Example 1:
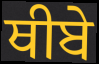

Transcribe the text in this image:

ਥੀਬੇ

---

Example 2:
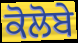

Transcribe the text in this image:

ਕੋਲੋਬੇ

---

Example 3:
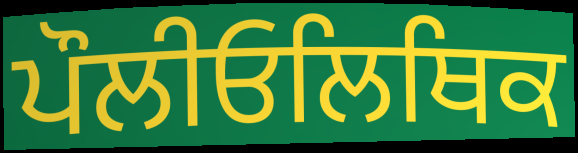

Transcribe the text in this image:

ਪੌਲੀਓਲਿਥਿਕ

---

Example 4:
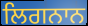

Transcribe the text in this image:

ਲਿਗਨਾਨ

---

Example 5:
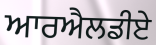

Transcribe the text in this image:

ਆਰਐਲਡੀਏ